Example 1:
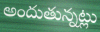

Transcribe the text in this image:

అందుతున్నట్లు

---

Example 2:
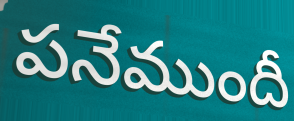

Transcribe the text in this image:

పనేముందీ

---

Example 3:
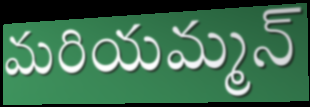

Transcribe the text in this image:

మరియమ్మన్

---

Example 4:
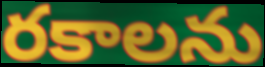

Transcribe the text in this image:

రకాలను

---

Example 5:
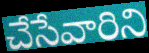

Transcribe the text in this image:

చేసేవారిని